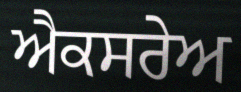
ਐਕਸਰੇਅ